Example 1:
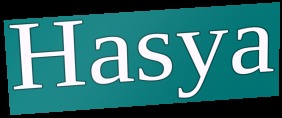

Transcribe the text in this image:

Hasya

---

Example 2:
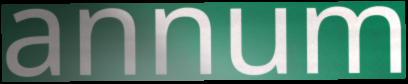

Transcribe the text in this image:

annum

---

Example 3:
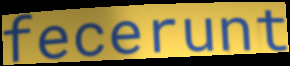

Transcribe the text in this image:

fecerunt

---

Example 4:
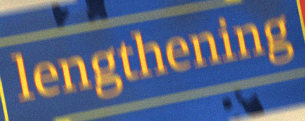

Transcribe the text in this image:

lengthening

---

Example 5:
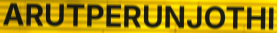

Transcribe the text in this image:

ARUTPERUNJOTHI